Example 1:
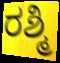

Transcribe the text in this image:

ರಶ್ಮಿ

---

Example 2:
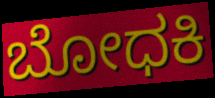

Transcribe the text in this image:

ಬೋಧಕಿ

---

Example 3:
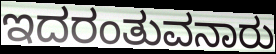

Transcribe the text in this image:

ಇದರಂತುವನಾರು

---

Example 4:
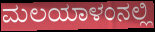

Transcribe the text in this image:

ಮಲಯಾಳಂನಲ್ಲಿ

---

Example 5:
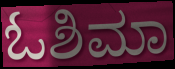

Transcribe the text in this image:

ಓಶಿಮಾ